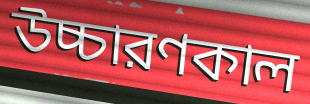
উচ্চারণকাল